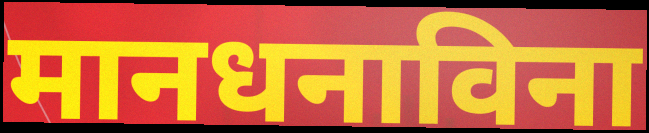
मानधनाविना